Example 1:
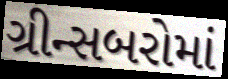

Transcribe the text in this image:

ગ્રીન્સબરોમાં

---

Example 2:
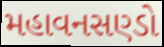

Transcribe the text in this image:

મહાવનસણ્ડો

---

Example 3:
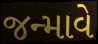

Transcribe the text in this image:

જન્માવે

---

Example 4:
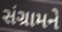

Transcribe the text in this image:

સંગ્રામને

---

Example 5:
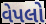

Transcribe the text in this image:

વેપલો